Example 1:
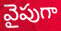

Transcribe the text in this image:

వైపుగా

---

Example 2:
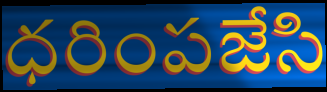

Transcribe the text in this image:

ధరింపజేసి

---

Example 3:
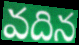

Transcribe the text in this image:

వదిన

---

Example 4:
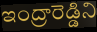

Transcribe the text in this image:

ఇంద్రారెడ్డిని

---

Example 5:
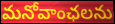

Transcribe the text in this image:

మనోవాంఛలను